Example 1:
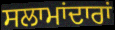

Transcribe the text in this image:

ਸਲਾਮਾਂਦਾਰਾਂ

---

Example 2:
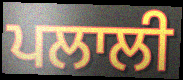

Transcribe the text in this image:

ਪਲਾਲੀ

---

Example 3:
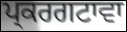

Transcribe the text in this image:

ਪ੍ਕਰਗਟਾਵਾ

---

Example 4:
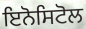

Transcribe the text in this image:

ਇਨੋਸਿਟੋਲ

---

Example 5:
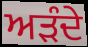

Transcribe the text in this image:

ਅੜੰਦੇ